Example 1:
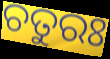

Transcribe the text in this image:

ଚତୁରଃ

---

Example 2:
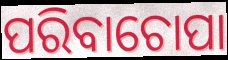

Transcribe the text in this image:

ପରିବାଚୋପା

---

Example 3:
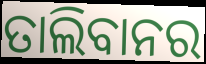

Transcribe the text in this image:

ତାଲିବାନର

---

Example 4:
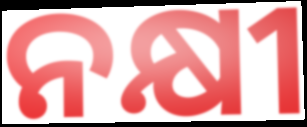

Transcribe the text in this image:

ନକ୍ଷୀ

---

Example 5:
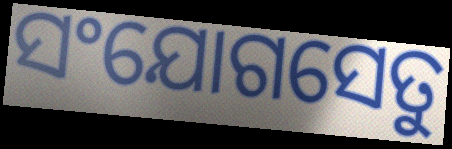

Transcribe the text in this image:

ସଂଯୋଗସେତୁ